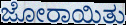
ಜೋರಾಯಿತು